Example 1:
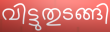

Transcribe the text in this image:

വിട്ടുതുടങ്ങി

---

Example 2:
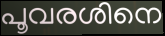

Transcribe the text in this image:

പൂവരശിനെ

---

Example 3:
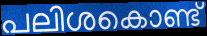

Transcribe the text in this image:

പലിശകൊണ്ട്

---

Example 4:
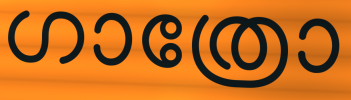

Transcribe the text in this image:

ഗാത്രോ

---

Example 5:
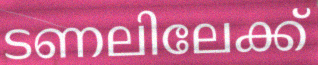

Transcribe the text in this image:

ടണലിലേക്ക്